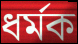
ধৰ্মক